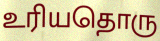
உரியதொரு